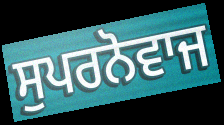
ਸੁਪਰਨੋਵਾਜ